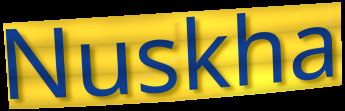
Nuskha